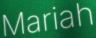
Mariah